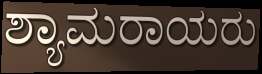
ಶ್ಯಾಮರಾಯರು